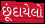
છૂંદાયેલો